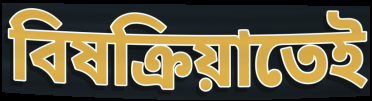
বিষক্রিয়াতেই